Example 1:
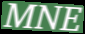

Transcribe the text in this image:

MNE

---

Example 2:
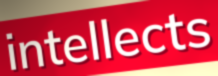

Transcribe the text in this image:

intellects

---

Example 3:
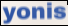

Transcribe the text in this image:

yonis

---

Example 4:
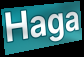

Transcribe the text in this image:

Haga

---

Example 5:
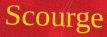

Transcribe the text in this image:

Scourge